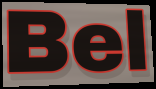
Bel